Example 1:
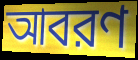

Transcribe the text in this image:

আবরণ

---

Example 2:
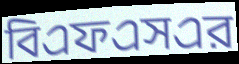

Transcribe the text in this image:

বিএফএসএর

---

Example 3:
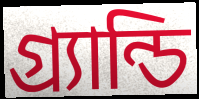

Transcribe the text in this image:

গ্র্যান্ডি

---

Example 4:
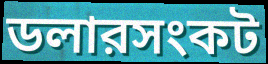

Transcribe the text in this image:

ডলারসংকট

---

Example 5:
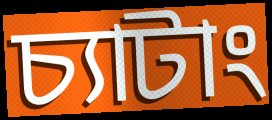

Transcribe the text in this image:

চ্যাটাং